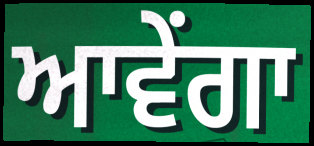
ਆਵੇਂਗਾ